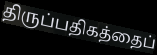
திருப்பதிகத்தைப்